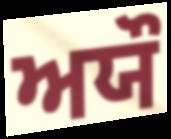
ਅਯੌ